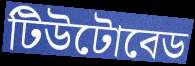
টিউটোবেড